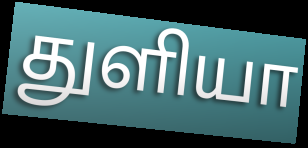
துளியா